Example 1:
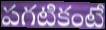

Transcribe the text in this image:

పగటికంటే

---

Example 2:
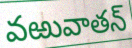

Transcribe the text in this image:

వఱువాతన్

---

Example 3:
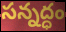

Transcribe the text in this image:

సన్నద్ధం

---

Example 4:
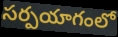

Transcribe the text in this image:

సర్పయాగంలో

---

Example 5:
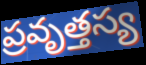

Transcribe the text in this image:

ప్రవృత్తస్య